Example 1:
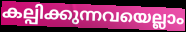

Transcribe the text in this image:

കല്പിക്കുന്നവയെല്ലാം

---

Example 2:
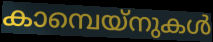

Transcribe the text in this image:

കാമ്പെയ്നുകൾ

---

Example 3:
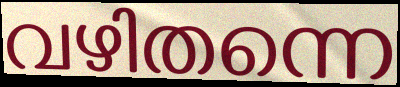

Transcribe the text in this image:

വഴിതന്നെ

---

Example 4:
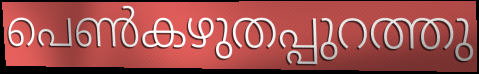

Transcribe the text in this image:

പെൺകഴുതപ്പുറത്തു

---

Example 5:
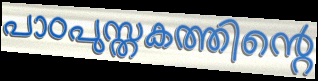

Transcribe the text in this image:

പാഠപുസ്തകത്തിന്റെ